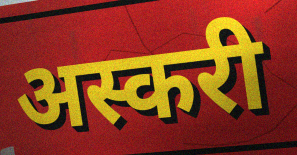
अस्करी